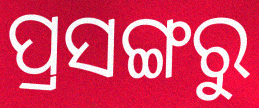
ପ୍ରସଙ୍ଗରୁ